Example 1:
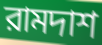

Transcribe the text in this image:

রামদাশ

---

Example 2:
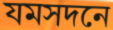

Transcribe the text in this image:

যমসদনে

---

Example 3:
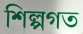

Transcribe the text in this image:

শিল্পগত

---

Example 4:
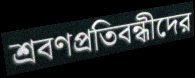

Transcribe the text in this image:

শ্রবণপ্রতিবন্ধীদের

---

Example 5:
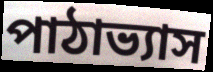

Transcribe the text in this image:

পাঠাভ্যাস